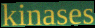
kinases